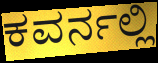
ಕವರ್ನಲ್ಲಿ